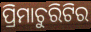
ପ୍ରିମାଚୁରିଟିର